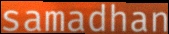
samadhan